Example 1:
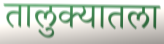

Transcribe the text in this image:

तालुक्यातला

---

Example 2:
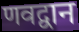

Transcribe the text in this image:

णवद्वान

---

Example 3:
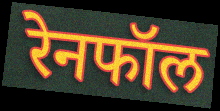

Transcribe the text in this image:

रेनफॉल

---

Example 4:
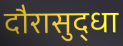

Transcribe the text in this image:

दौरासुद्धा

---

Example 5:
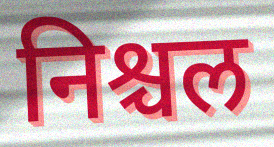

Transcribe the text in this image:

निश्चल